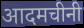
आदमचीनी